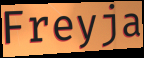
Freyja